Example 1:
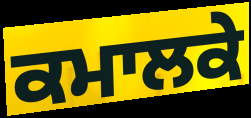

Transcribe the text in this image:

ਕਮਾਲਕੇ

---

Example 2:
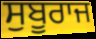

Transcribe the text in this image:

ਸੁਬੂਰਾਜ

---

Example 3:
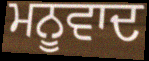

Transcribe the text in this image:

ਮਨੂਵਾਦ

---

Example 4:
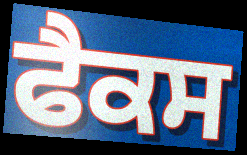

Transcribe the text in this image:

ਫੈਕਸ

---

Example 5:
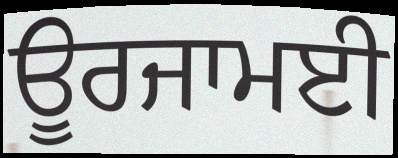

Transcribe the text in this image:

ਊਰਜਾਮਈ